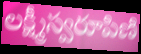
లక్ష్మీస్వరూపిణి